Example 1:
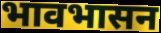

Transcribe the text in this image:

भावभासन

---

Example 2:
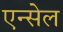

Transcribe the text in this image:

एन्सेल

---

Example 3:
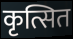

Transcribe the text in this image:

कृत्सित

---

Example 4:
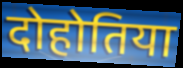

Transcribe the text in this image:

दोहोतिया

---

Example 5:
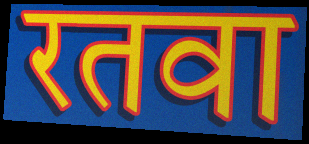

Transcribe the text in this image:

रतवा